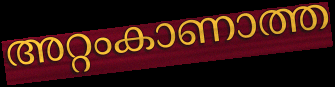
അറ്റംകാണാത്ത